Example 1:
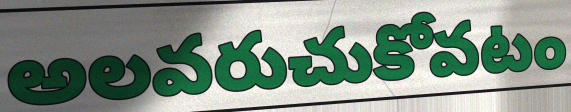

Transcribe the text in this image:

అలవరుచుకోవటం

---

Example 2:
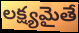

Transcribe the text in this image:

లక్ష్యమైతే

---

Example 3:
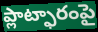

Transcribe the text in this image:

ప్లాట్ఫారంపై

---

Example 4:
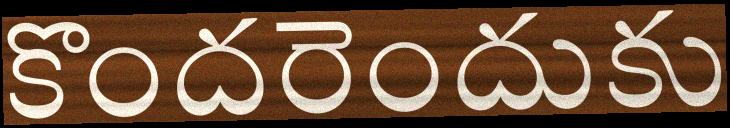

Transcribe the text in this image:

కొందరెందుకు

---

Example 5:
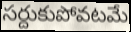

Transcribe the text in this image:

సర్దుకుపోవటమే